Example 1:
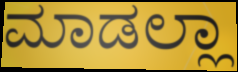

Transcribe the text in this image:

ಮಾಡಲ್ಲಾ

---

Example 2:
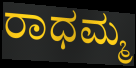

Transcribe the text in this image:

ರಾಧಮ್ಮ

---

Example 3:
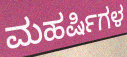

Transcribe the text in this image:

ಮಹರ್ಷಿಗಳ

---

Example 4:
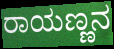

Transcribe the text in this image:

ರಾಯಣ್ಣನ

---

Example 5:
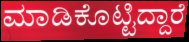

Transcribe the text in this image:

ಮಾಡಿಕೊಟ್ಟಿದ್ದಾರೆ